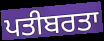
ਪਤੀਬਰਤਾ